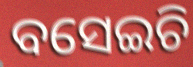
ବସେଇଚି